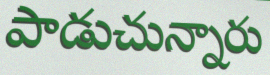
పాడుచున్నారు